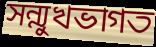
সন্মুখভাগত